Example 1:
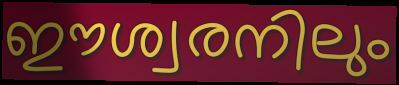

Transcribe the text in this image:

ഈശ്വരനിലും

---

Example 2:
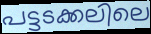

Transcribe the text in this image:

പട്ടടക്കലിലെ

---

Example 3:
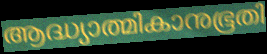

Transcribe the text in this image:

ആദ്ധ്യാത്മികാനുഭൂതി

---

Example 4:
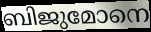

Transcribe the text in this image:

ബിജുമോനെ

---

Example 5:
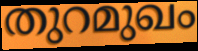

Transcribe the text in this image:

തുറമുഖം